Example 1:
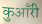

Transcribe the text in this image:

कुआँरी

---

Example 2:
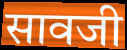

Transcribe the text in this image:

सावजी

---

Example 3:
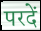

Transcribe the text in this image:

परदें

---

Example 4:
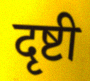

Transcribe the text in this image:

दृष्टी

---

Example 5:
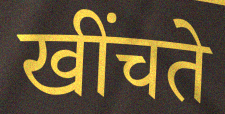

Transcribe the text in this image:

खींचते